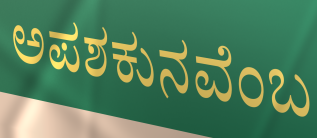
ಅಪಶಕುನವೆಂಬ